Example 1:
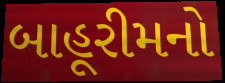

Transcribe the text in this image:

બાહૂરીમનો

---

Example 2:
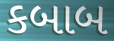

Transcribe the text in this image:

કબાબ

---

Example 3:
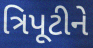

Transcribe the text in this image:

ત્રિપૂટીને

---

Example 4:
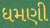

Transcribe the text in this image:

ધમણી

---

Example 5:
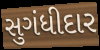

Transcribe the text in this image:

સુગંધીદાર